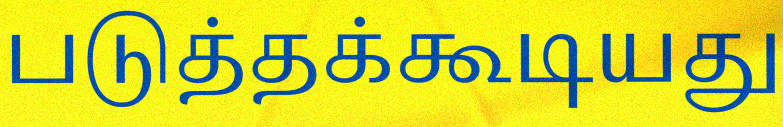
படுத்தக்கூடியது